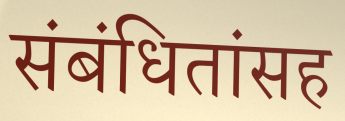
संबंधितांसह